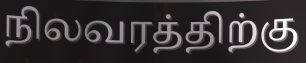
நிலவரத்திற்கு